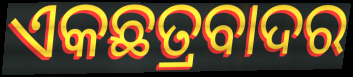
ଏକଛତ୍ରବାଦର